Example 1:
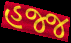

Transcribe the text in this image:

હજ્જ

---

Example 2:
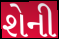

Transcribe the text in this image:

શેની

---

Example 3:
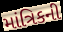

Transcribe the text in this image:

માંત્રિકની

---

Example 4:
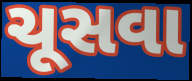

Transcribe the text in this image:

ચૂસવા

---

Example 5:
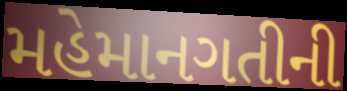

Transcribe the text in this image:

મહેમાનગતીની